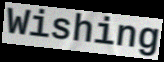
Wishing